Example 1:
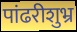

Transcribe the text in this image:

पांढरीशुभ्र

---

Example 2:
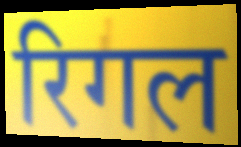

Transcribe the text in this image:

रिगल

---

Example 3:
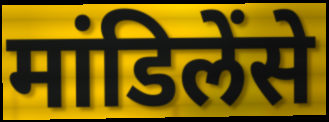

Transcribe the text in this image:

मांडिलेंसे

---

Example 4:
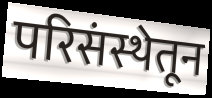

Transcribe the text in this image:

परिसंस्थेतून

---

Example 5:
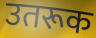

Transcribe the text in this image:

उतरूक